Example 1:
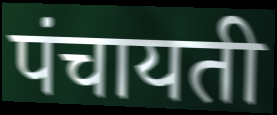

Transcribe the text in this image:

पंचायती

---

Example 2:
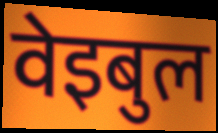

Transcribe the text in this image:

वेइबुल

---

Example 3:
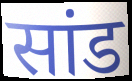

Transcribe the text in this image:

सांड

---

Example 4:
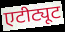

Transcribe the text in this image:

एटीट्यूट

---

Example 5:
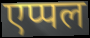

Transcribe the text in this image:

एप्पल